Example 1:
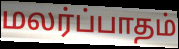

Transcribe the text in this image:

மலர்ப்பாதம்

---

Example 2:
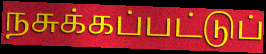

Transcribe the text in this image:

நசுக்கப்பட்டுப்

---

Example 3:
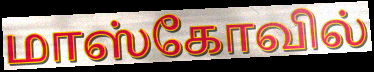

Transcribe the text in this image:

மாஸ்கோவில்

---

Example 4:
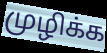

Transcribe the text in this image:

முழிக்க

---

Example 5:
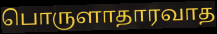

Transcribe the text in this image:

பொருளாதாரவாத